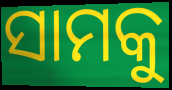
ସାମକୁ